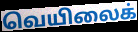
வெயிலைக்